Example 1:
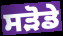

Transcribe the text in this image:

ਸੜੋਡੇ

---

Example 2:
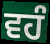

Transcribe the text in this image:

ਵਹੰ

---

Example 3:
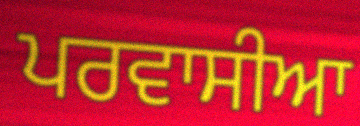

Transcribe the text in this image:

ਪਰਵਾਸੀਆ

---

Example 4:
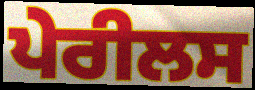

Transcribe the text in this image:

ਪੇਰੀਲਸ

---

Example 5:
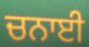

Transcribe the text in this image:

ਚਨਾਈ